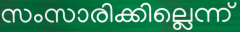
സംസാരിക്കില്ലെന്ന്